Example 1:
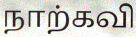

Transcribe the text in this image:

நாற்கவி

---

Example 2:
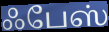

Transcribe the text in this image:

ஃபேஸ்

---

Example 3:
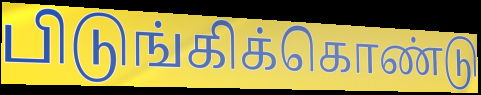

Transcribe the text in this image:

பிடுங்கிக்கொண்டு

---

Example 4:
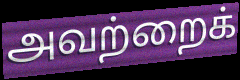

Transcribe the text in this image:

அவற்றைக்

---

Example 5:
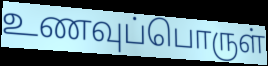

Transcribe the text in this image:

உணவுப்பொருள்